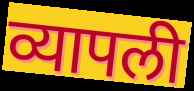
व्यापली